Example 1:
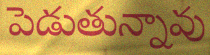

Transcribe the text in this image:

పెడుతున్నావు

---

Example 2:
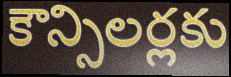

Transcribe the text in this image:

కౌన్సిలర్లకు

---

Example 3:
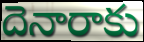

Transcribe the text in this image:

దెనారాకు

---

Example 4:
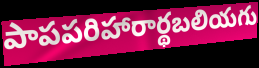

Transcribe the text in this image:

పాపపరిహారార్థబలియగు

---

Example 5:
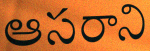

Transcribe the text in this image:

ఆసరాని